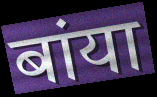
बांया